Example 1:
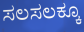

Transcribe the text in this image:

ಸಲಸಲಕ್ಕೂ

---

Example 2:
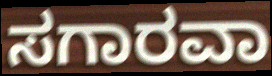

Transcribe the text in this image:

ಸಗಾರವಾ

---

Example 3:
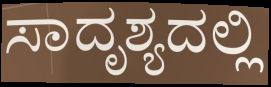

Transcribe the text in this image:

ಸಾದೃಶ್ಯದಲ್ಲಿ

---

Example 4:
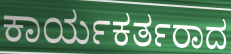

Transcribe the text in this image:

ಕಾರ್ಯಕರ್ತರಾದ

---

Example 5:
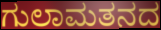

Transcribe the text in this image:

ಗುಲಾಮತನದ